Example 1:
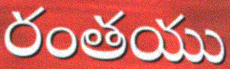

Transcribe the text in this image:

రంతయు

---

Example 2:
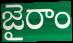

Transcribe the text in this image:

జైరాం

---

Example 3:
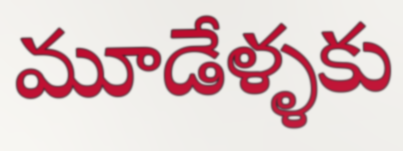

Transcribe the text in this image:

మూడేళ్ళకు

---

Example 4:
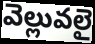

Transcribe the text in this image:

వెల్లువలై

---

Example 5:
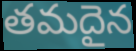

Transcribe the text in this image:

తమదైన